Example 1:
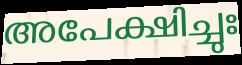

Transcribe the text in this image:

അപേക്ഷിച്ചുഃ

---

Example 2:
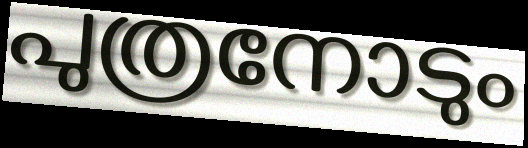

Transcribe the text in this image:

പുത്രനോടും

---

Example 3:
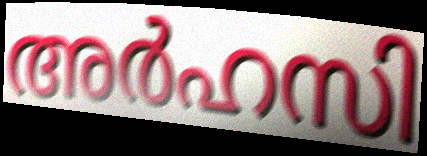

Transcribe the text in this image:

അർഹസി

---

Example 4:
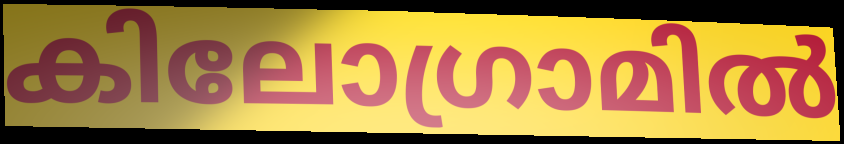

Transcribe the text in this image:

കിലോഗ്രാമിൽ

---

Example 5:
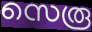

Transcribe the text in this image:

സെരൂ